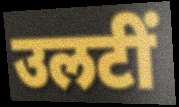
उलटीं